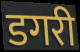
डगरी